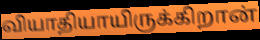
வியாதியாயிருக்கிறான்